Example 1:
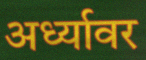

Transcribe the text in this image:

अर्ध्यावर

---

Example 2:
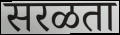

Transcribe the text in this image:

सरळता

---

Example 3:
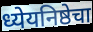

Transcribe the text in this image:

ध्येयनिष्ठेचा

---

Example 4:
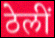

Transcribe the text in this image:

ठेलीं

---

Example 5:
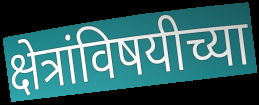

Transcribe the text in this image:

क्षेत्रांविषयीच्या